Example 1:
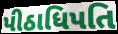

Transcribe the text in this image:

પીઠાધિપતિ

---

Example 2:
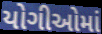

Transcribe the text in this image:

યોગીઓમાં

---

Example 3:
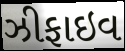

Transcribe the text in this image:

ઝીફાઇવ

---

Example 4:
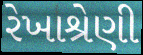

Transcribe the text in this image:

રેખાશ્રેણી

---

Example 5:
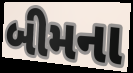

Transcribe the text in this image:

બીમના